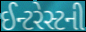
ઈન્ટરેસ્ટની